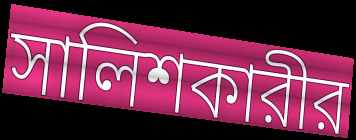
সালিশকারীর